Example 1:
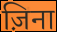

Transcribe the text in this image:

ज़िना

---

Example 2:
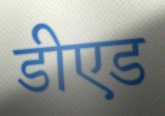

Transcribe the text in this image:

डीएड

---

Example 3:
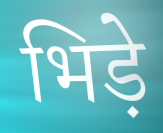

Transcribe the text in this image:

भिड़े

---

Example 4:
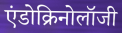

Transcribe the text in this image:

एंडोक्रिनोलॉजी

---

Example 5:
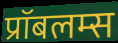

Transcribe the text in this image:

प्रॉबलम्स